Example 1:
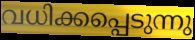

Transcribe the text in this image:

വധിക്കപ്പെടുന്നു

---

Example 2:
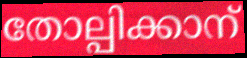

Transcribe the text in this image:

തോല്പിക്കാന്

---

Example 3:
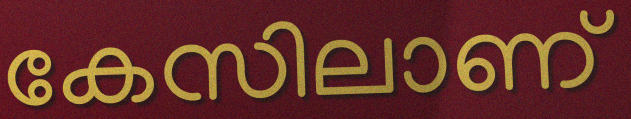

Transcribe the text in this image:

കേസിലാണ്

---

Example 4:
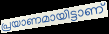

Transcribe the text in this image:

പ്രയാണമായിട്ടാണ്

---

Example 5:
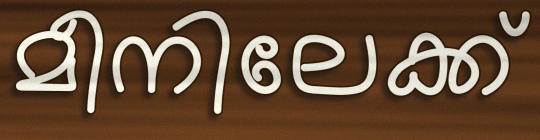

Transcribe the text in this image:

മീനിലേക്ക്